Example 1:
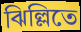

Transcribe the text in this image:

ঝিল্লিতে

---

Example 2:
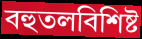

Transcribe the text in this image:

বহুতলবিশিষ্ট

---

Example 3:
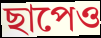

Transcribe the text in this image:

ছাপেও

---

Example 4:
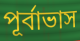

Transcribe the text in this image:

পূর্বাভাস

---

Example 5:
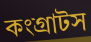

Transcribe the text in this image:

কংগ্রাটস